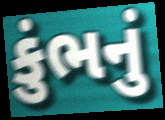
કુંભનું